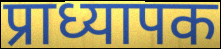
प्राध्यापक